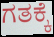
ಗತಕ್ಕೆ